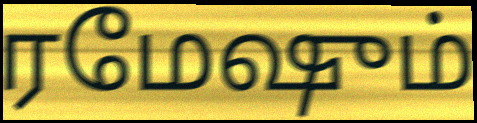
ரமேஷும்